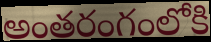
అంతరంగంలోకి